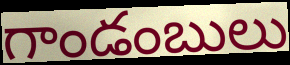
గాండంబులు